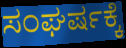
ಸಂಘರ್ಷಕ್ಕೆ